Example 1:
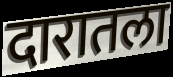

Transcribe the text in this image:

दारातला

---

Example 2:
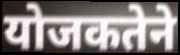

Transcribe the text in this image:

योजकतेने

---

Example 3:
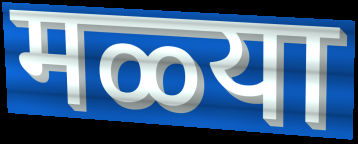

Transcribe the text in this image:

मळ्या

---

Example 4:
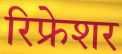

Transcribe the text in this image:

रिफ्रेशर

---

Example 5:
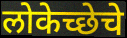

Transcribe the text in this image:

लोकेच्छेचे